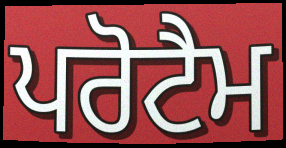
ਪਰੋਟੈਮ